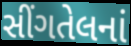
સીંગતેલનાં